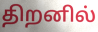
திறனில்